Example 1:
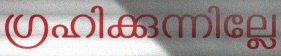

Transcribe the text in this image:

ഗ്രഹിക്കുന്നില്ലേ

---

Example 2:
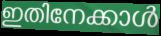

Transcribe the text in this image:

ഇതിനേക്കാൾ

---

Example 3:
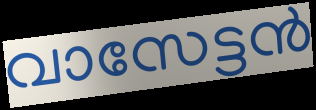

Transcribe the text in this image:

വാസേട്ടൻ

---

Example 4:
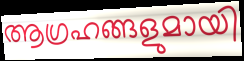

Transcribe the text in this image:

ആഗ്രഹങ്ങളുമായി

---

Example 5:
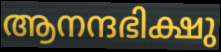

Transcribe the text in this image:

ആനന്ദഭിക്ഷു